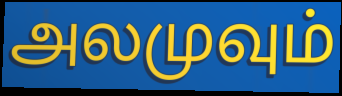
அலமுவும்